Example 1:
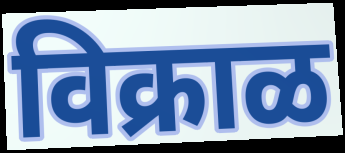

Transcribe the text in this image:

विक्राळ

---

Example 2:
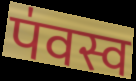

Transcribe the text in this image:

प॑वस्व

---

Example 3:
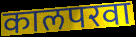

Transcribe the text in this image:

कालपरवा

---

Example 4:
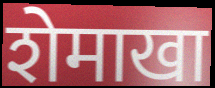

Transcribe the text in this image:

शेमाखा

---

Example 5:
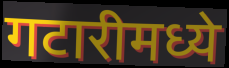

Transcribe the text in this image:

गटारीमध्ये